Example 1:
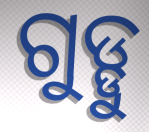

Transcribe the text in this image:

ଗୁଡ୍ଡୁ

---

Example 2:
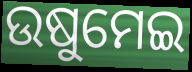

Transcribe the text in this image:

ଉଷୁମେଇ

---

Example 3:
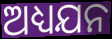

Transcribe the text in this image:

ଅଧ୍ୟଯନ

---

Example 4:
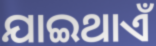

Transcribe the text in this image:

ଯାଇଥାଏଁ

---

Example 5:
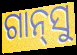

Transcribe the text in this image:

ଗାନ୍‍ସୁ